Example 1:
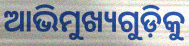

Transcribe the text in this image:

ଆଭିମୁଖ୍ୟଗୁଡ଼ିକୁ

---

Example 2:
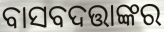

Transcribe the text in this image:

ବାସବଦତ୍ତାଙ୍କର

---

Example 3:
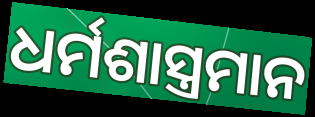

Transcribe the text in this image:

ଧର୍ମଶାସ୍ତ୍ରମାନ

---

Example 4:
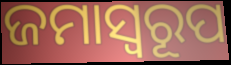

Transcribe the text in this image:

ଜମାସ୍ବରୂପ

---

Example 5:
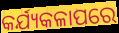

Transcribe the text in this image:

କର୍ଯ୍ୟକଳାପରେ